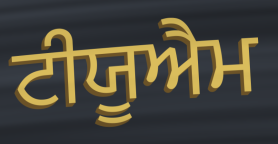
ਟੀਯੂਐਮ